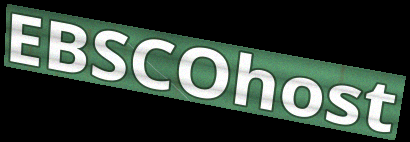
EBSCOhost